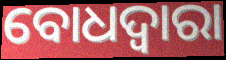
ବୋଧଦ୍ଵାରା